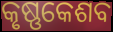
କୃଷ୍ଣକେଶବ